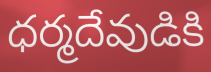
ధర్మదేవుడికి